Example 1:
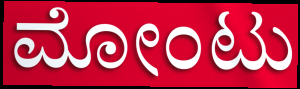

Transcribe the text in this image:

ಮೋಂಟು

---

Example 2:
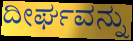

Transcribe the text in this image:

ದೀರ್ಘವನ್ನು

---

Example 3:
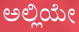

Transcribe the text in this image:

ಅಲ್ಲಿಯೇ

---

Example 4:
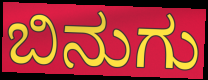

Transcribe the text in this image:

ಬಿನುಗು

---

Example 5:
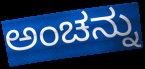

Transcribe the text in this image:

ಅಂಚನ್ನು